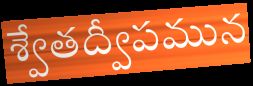
శ్వేతద్వీపమున